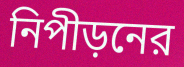
নিপীড়নের